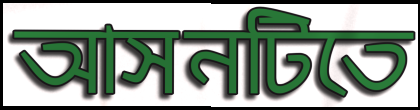
আসনটিতে